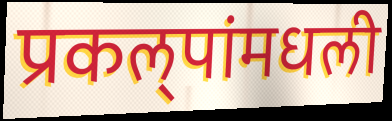
प्रकल्पांमधली